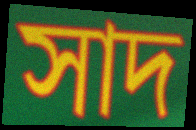
সাদ